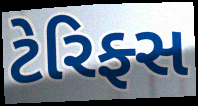
ટેરિફ્સ